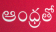
ఆంధ్రతో